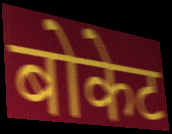
बोकेट